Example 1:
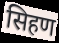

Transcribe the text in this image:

सिहण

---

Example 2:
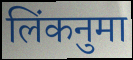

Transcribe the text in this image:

लिंकनुमा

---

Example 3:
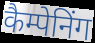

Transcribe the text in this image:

कैम्पेनिंग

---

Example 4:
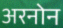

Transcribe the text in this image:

अरनोन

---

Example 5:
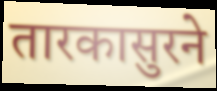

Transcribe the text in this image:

तारकासुरने